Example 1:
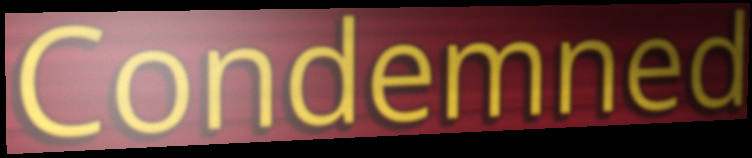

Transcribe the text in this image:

Condemned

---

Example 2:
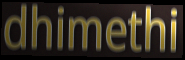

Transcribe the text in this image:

dhimethi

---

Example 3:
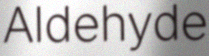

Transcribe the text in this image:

Aldehyde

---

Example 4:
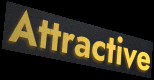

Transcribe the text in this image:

Attractive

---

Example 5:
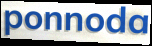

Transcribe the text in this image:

ponnoda